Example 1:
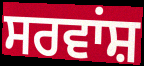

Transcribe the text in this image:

ਸਰਵਾਂਸ਼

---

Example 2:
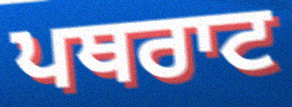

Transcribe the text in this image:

ਪਥਰਾਟ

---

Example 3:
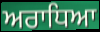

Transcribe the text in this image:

ਅਰਾਧਿਆ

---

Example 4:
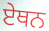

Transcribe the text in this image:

ਏਥਨ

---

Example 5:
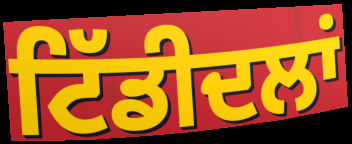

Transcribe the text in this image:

ਟਿੱਡੀਦਲਾਂ